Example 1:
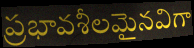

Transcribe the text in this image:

ప్రభావశీలమైనవిగా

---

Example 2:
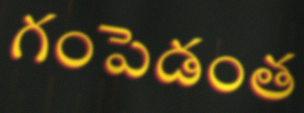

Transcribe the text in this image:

గంపెడంత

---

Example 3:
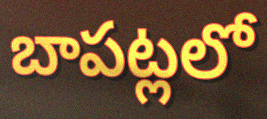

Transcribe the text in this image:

బాపట్లలో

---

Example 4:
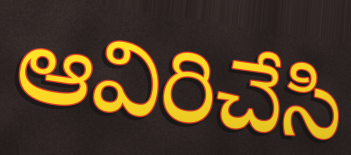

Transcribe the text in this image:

ఆవిరిచేసి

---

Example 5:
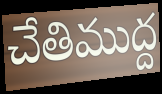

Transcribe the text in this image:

చేతిముద్ద